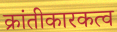
क्रांतीकारकत्व